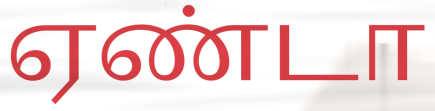
ஏண்டா